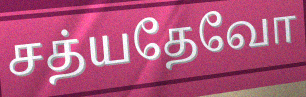
சத்யதேவோ